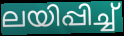
ലയിപ്പിച്ച്